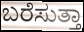
ಬರೆಸುತ್ತಾ